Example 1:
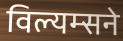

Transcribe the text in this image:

विल्यम्सने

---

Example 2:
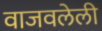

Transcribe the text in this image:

वाजवलेली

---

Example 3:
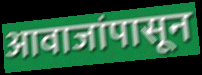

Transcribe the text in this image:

आवाजांपासून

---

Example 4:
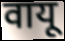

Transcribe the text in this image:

वायू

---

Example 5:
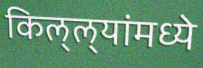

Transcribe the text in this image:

किल्ल्यांमध्ये